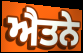
ਐਤਨੇ